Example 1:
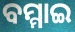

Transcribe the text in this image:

ବମ୍ମାଇ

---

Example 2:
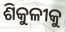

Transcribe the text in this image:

ଶିକୁଳୀକୁ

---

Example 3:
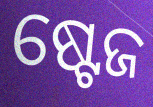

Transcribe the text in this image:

ଷ୍ଟେଜ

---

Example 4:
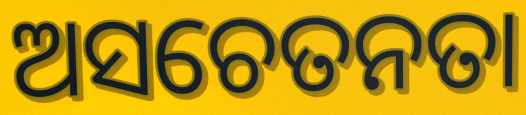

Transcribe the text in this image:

ଅସଚେତନତା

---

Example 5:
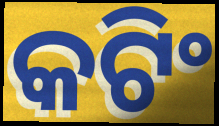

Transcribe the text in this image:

କଟିଂ